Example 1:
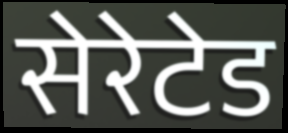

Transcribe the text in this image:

सेरेटेड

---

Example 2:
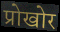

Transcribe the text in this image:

प्रोखोर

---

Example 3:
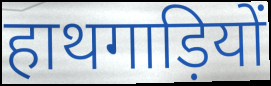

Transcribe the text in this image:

हाथगाड़ियों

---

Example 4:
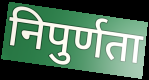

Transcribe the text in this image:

निपुर्णता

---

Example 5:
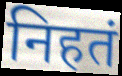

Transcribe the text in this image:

निहतं